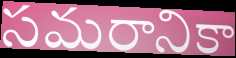
సమరానికా